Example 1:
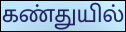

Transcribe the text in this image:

கண்துயில்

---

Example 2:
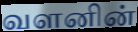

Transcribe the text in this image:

வளனின்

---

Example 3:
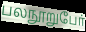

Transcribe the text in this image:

பலநூறுபேர்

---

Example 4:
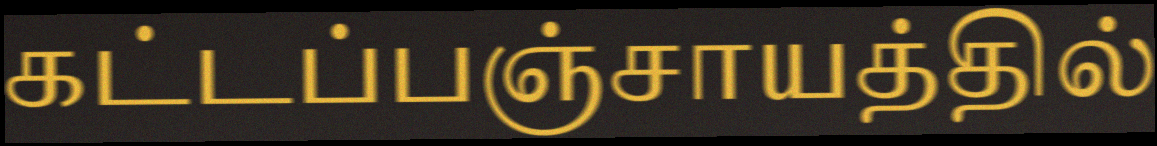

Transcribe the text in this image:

கட்டப்பஞ்சாயத்தில்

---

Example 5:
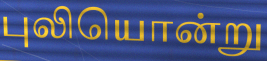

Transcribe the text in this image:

புலியொன்று